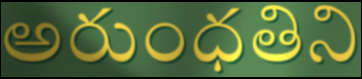
అరుంధతిని